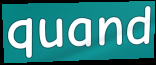
quand